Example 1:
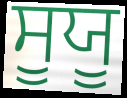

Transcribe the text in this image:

ਸੂਯੂ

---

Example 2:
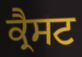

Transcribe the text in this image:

ਕ੍ਰੈਸਟ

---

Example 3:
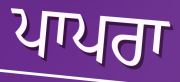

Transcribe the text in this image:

ਪਾਪਰਾ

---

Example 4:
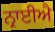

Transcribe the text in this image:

ਨ੍ਰਾਈਐ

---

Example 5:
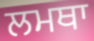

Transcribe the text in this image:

ਲਮਥਾ